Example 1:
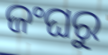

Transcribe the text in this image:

ଜଂଘରୁ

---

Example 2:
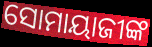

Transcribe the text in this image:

ସୋମାୟାଜୀଙ୍କ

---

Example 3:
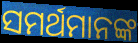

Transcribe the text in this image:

ସମର୍ଥମାନଙ୍କ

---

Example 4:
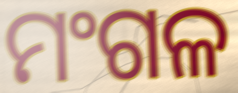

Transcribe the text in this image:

ମଂଗଳ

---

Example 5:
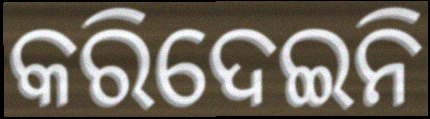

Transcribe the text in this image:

କରିଦେଇନି